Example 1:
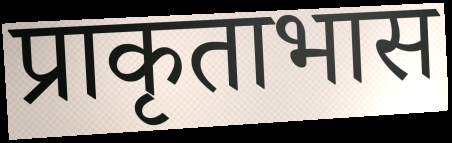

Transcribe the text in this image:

प्राकृताभास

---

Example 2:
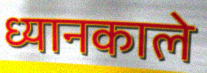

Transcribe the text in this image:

ध्यानकाले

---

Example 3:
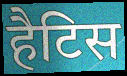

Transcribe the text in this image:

हैटिस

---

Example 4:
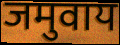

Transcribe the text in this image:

जमुवाय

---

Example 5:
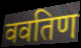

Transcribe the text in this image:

ववतिण